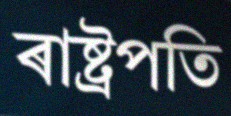
ৰাষ্ট্ৰপতি